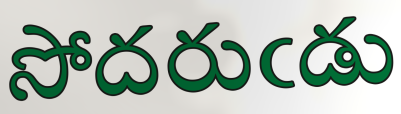
సోదరుఁడు